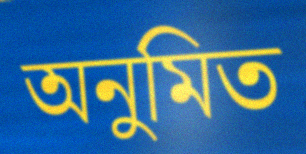
অনুমিত